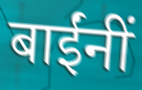
बाईंनीं